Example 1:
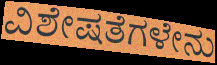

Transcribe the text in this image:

ವಿಶೇಷತೆಗಳೇನು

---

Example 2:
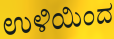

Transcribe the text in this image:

ಉಳಿಯಿಂದ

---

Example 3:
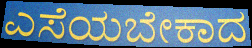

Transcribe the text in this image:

ಎಸೆಯಬೇಕಾದ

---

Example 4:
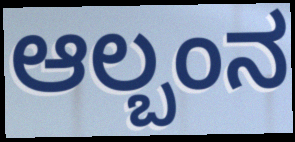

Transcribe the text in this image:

ಆಲ್ಬಂನ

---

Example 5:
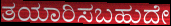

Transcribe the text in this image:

ತಯಾರಿಸಬಹುದೇ